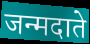
जन्मदाते